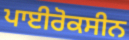
ਪਾਈਰੋਕਸੀਨ